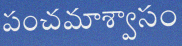
పంచమాశ్వాసం